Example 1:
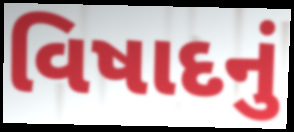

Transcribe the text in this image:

વિષાદનું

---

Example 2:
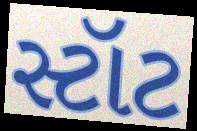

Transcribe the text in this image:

સ્ટૉટ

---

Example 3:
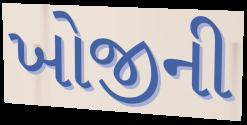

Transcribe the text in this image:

ખોજીની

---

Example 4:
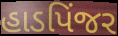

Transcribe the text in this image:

હાડપિંજર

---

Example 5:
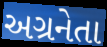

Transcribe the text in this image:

અગ્રનેતા